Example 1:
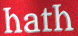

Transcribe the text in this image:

hath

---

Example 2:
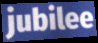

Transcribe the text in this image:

jubilee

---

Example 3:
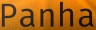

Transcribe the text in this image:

Panha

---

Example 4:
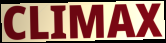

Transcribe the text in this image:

CLIMAX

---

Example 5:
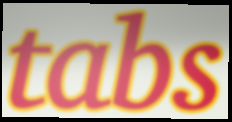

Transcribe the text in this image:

tabs